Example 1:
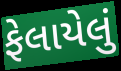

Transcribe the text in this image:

ફેલાયેલું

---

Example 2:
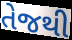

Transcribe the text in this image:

તેજથી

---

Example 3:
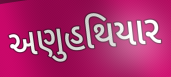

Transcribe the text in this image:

અણુહથિયાર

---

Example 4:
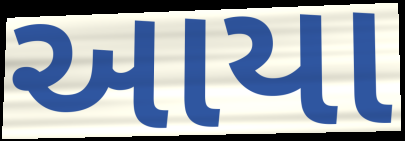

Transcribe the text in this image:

આયા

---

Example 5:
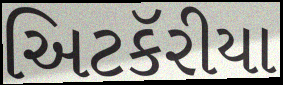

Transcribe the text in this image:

અિટકૅરીયા